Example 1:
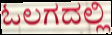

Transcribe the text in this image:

ಓಲಗದಲ್ಲಿ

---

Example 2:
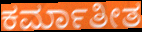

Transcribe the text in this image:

ಕರ್ಮಾತೀತ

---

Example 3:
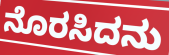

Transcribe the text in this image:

ನೊರಸಿದನು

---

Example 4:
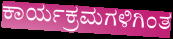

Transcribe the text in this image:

ಕಾರ್ಯಕ್ರಮಗಳಿಗಿಂತ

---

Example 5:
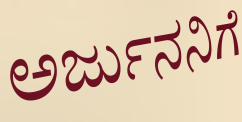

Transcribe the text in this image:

ಅರ್ಜುನನಿಗೆ